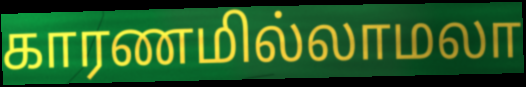
காரணமில்லாமலா